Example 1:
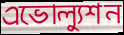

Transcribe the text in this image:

এভোল্যুশন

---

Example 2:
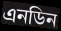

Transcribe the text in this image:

এনডিন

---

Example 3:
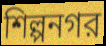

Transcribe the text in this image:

শিল্পনগর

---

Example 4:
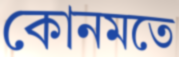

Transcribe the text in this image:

কোনমতে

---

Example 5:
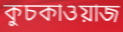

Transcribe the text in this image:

কুচকাওয়াজ